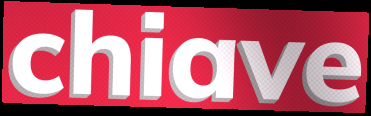
chiave